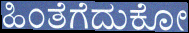
ಹಿಂತೆಗೆದುಕೋ